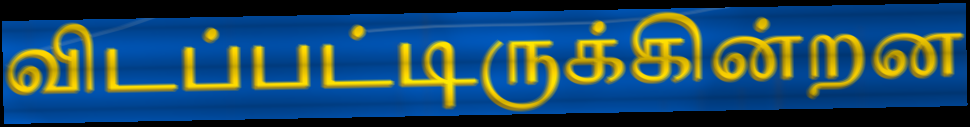
விடப்பட்டிருக்கின்றன